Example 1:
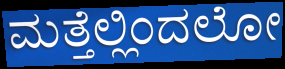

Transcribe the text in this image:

ಮತ್ತೆಲ್ಲಿಂದಲೋ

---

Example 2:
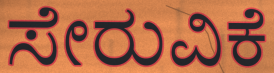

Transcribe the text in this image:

ಸೇರುವಿಕೆ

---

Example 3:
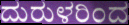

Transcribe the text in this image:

ದುರುಳರಿಂದ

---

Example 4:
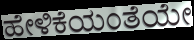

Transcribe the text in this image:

ಹೇಳಿಕೆಯಂತೆಯೇ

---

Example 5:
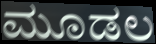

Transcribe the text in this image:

ಮೂಡಲ